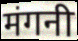
मंगनी